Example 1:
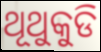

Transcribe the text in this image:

ଥୂଥୁକୁଡି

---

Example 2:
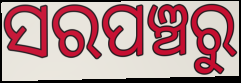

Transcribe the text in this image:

ସରପଞ୍ଚରୁ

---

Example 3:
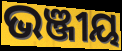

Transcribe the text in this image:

ଭଞ୍ଜୀୟ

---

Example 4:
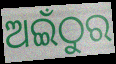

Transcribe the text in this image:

ଅଇଁଠୁର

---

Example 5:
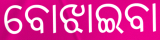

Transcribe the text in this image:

ବୋଝାଇବା